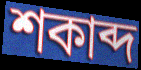
শকাব্দ